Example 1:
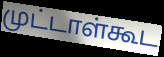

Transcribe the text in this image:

முட்டாள்கூட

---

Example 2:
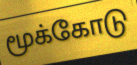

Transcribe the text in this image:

மூக்கோடு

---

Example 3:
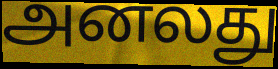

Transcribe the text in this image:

அனலது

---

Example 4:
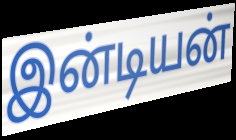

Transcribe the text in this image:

இன்டியன்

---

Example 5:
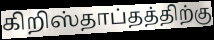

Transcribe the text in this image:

கிறிஸ்தாப்தத்திற்கு